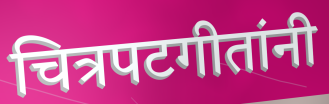
चित्रपटगीतांनी